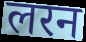
लरन